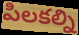
పిలకల్ని